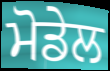
ਮੋਡੇਲ